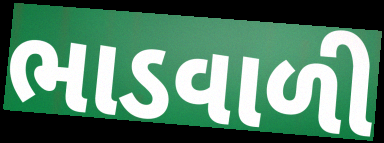
ભાડવાળી